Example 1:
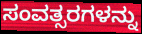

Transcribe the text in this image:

ಸಂವತ್ಸರಗಳನ್ನು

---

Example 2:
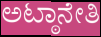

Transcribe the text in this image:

ಅಟ್ಠಾನೇತಿ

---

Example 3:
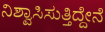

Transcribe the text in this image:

ನಿಶ್ವಾಸಿಸುತ್ತಿದ್ದೇನೆ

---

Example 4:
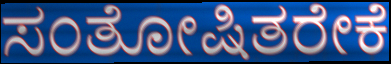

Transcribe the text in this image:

ಸಂತೋಷಿತರೇಕೆ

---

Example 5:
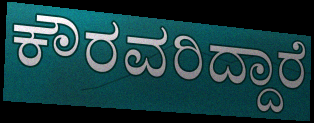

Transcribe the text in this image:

ಕೌರವರಿದ್ದಾರೆ